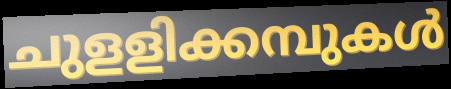
ചുളളിക്കമ്പുകൾ